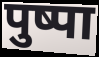
पुष्पा